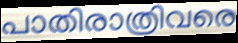
പാതിരാത്രിവരെ